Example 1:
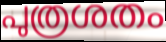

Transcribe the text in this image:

പുത്രശതം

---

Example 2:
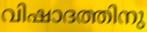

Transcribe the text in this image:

വിഷാദത്തിനു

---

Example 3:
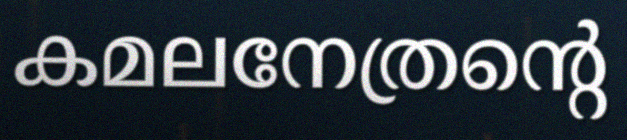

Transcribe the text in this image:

കമലനേത്രന്റെ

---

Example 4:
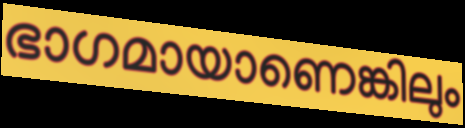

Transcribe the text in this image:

ഭാഗമായാണെങ്കിലും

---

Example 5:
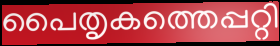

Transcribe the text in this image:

പൈതൃകത്തെപ്പറ്റി